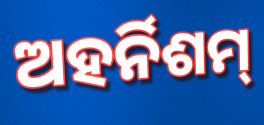
ଅହର୍ନିଶମ୍